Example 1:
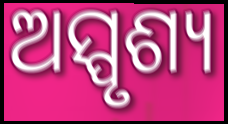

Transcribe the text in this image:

ଅସ୍ପୃଶ୍ୟ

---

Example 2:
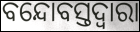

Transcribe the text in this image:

ବନ୍ଦୋବସ୍ତଦ୍ୱାରା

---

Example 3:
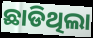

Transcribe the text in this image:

ଛାଡିଥିଲା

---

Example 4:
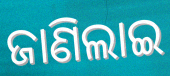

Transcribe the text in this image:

ଜାଣିଲାଇ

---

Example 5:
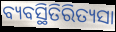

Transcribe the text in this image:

ବ୍ୟବସ୍ଥିତିରିତ୍ୟସା